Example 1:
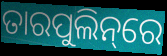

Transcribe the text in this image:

ତାରପୁଲିନ୍‌ରେ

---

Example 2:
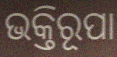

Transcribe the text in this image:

ଭକ୍ତିରୂପା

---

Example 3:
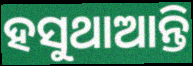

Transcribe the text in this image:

ହସୁଥାଆନ୍ତି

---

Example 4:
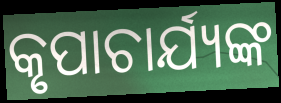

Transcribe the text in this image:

କୃପାଚାର୍ଯ୍ୟଙ୍କ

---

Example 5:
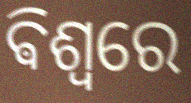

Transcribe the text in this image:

ଵିଶ୍ୱରେ